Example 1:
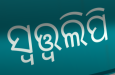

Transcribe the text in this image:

ସ୍ୱତ୍ତ୍ୱଲିପି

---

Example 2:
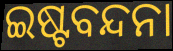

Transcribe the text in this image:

ଇଷ୍ଟବନ୍ଦନା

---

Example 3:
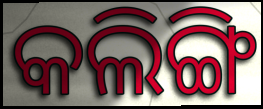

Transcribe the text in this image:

କଲିଙ୍ଗି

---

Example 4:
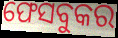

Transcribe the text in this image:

ଫେସବୁକର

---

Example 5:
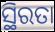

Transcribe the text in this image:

ସ୍ଥିରତା